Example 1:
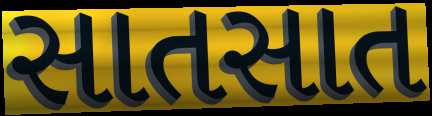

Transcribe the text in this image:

સાતસાત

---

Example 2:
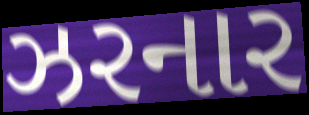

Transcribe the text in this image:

ઝરનાર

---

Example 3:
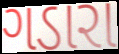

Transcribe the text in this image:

ગડારા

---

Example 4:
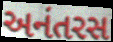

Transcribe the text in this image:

અનંતરસ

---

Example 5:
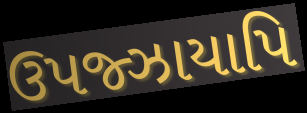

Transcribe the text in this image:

ઉપજ્ઝાયાપિ